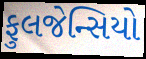
ફુલજેન્સિયો